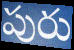
పురు